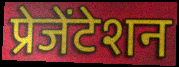
प्रेजेंटेशन